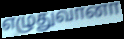
எழுதுவானா